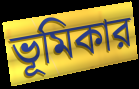
ভূমিকার